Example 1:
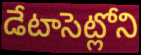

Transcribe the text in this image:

డేటాసెట్లోని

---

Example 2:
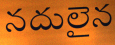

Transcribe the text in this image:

నదులైన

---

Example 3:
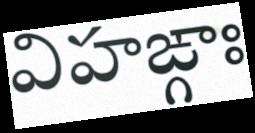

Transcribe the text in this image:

విహఙ్గాః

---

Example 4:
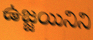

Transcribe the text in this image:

ఉజ్జయినిని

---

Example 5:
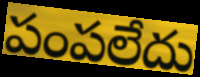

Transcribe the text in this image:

పంపలేదు